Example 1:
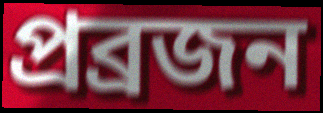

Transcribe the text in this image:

প্ৰব্ৰজন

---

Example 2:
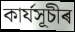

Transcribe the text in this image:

কাৰ্যসূচীৰ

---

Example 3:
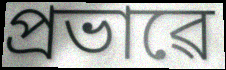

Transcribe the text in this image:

প্ৰভাৱে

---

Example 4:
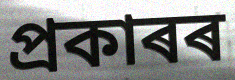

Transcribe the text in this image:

প্ৰকাৰৰ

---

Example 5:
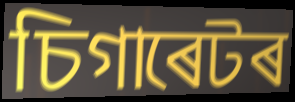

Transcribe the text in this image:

চিগাৰেটৰ